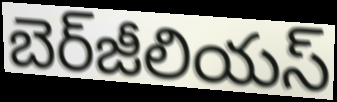
బెర్‌జీలియస్